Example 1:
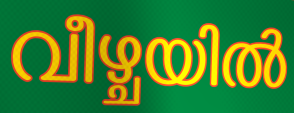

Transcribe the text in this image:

വീഴ്ചയിൽ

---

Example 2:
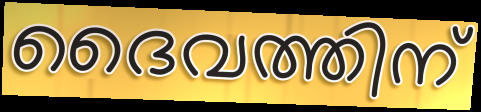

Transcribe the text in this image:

ദൈവത്തിന്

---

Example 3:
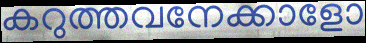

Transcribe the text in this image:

കറുത്തവനേക്കാളോ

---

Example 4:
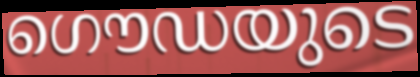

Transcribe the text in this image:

ഗൌഡയുടെ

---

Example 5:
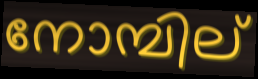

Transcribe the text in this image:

നോമ്പില്